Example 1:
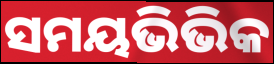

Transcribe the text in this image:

ସମୟଭିଭିକ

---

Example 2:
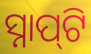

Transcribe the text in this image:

ସ୍ନାପ୍‍ଟି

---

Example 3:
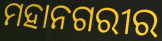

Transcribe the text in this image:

ମହାନଗରୀର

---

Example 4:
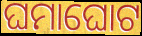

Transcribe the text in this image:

ଘମାଘୋଟ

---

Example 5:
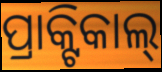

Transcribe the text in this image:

ପ୍ରାକ୍ଟିକାଲ୍